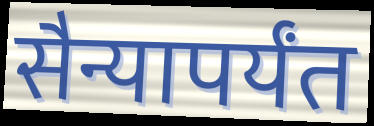
सैन्यापर्यंत